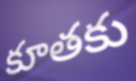
కూతకు